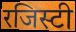
रजिस्टी